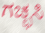
ಗಚ್ಛಸಿ